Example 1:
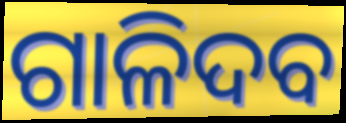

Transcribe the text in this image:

ଗାଳିଦବ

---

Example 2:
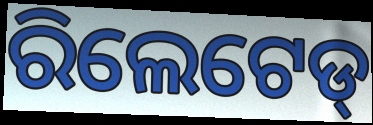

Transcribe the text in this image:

ରିଲେଟେଡ୍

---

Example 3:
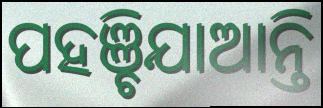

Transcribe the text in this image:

ପହଞ୍ଚିଯାଆନ୍ତି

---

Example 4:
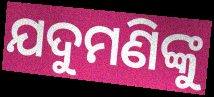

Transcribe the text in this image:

ଯଦୁମଣିଙ୍କୁ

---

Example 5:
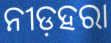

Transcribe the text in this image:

ନୀଡ଼ହରା